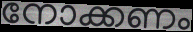
നോക്കണം